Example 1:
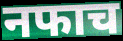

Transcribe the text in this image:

नफाच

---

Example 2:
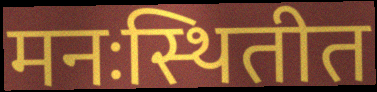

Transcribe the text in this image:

मनःस्थितीत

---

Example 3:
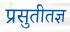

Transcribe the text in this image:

प्रसुतीतज्ञ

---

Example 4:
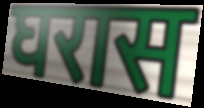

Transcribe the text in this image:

घरास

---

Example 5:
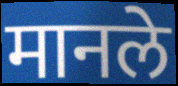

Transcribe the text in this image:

मानले